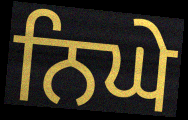
ਨਿਘੇ